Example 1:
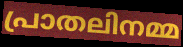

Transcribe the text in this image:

പ്രാതലിനമ്മ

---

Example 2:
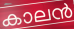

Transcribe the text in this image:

കാലൻ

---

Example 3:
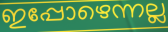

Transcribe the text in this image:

ഇപ്പോഴെന്നല്ല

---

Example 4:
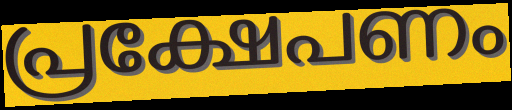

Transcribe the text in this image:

പ്രക്ഷേപണം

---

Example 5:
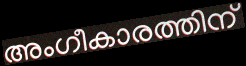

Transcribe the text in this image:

അംഗീകാരത്തിന്